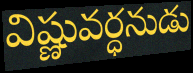
విష్ణువర్ధనుడు